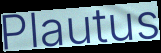
Plautus